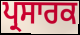
ਪ੍ਰਸਾਰਕ